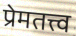
प्रेमतत्त्व